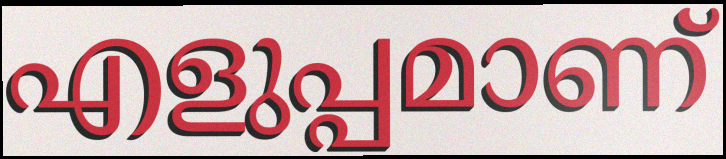
എളുപ്പമാണ്